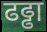
ढढ्ढा